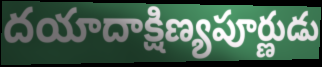
దయాదాక్షిణ్యపూర్ణుడు